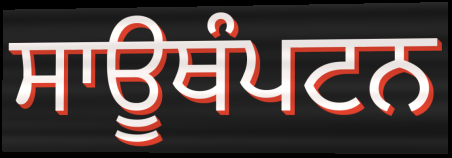
ਸਾਊਥੰਪਟਨ